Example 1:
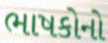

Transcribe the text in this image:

ભાષકોનો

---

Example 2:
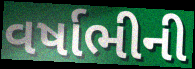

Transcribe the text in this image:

વર્ષાભીની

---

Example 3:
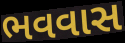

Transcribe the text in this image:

ભવવાસ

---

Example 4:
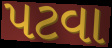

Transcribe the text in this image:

પટવા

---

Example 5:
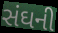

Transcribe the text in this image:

સંઘની